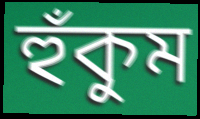
হুঁকুম